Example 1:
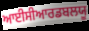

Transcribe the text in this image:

ਆਈਸੀਆਰਡਬਲਯੂ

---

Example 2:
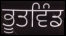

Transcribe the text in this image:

ਭੂਤਵਿੰਡ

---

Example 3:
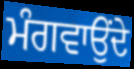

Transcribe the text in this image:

ਮੰਗਵਾਉਂਦੇ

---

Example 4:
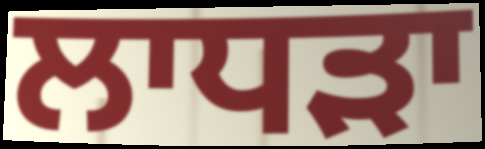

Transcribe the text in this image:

ਲਾਧੜਾ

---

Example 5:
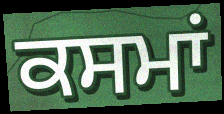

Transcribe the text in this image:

ਕਸਮਾਂ